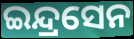
ଇନ୍ଦ୍ରସେନ